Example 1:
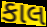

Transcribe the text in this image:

કાલ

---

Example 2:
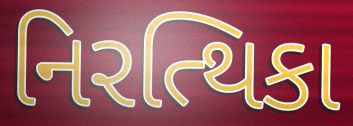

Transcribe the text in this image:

નિરત્થિકા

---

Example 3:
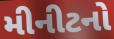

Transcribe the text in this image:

મીનીટનો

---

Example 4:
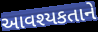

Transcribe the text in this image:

આવશ્યકતાને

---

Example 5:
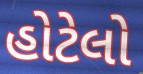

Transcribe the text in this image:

હોટેલો